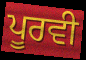
ਪੂਰਵੀ